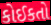
કોઈકતો